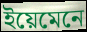
ইয়েমেনে